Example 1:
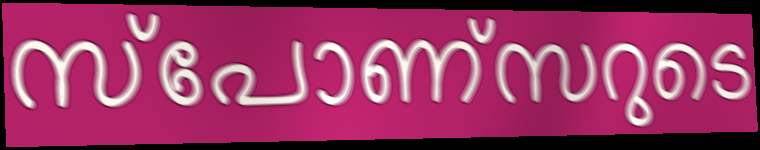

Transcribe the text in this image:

സ്പോണ്സറുടെ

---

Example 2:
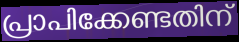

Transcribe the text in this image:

പ്രാപിക്കേണ്ടതിന്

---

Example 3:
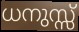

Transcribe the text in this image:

ധനുസ്സ്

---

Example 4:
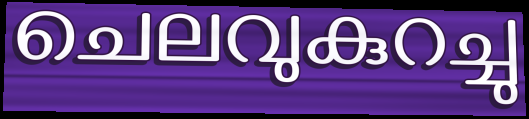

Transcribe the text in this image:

ചെലവുകുറച്ചു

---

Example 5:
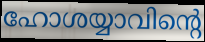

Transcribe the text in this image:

ഹോശയ്യാവിന്റെ